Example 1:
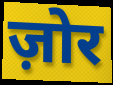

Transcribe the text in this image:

ज़ोर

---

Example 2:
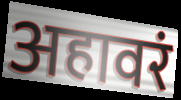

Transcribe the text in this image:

अहावरं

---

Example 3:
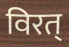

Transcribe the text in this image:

विरत्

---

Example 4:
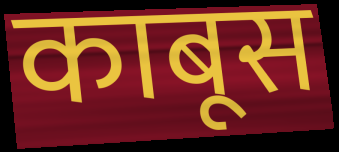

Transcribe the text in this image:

काबूस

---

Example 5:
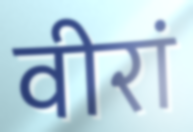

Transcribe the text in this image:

वीरां